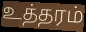
உத்தரம்